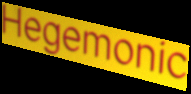
Hegemonic